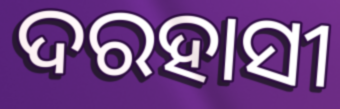
ଦରହାସୀ